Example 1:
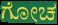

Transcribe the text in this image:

ಗೋಚ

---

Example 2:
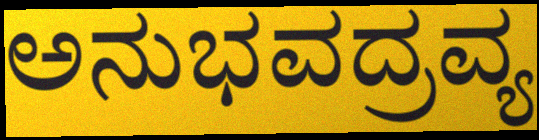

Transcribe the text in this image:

ಅನುಭವದ್ರವ್ಯ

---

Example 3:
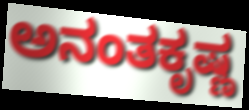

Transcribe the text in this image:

ಅನಂತಕೃಷ್ಣ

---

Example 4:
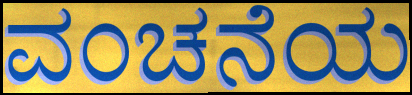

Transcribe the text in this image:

ವಂಚನೆಯ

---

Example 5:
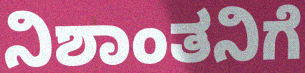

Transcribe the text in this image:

ನಿಶಾಂತನಿಗೆ